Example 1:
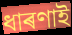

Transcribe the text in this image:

ধাৰণাই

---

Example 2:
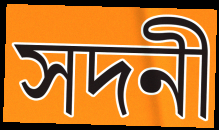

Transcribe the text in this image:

সদনী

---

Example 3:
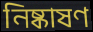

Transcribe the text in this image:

নিষ্কাষণ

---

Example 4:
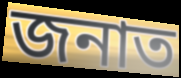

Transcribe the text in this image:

জনাত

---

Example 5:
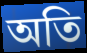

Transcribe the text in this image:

অতি